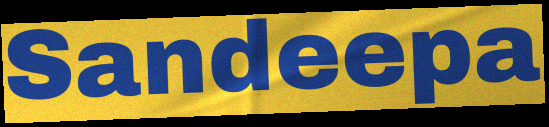
Sandeepa